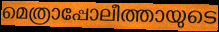
മെത്രാപ്പോലീത്തായുടെ